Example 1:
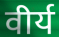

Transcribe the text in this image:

वीर्य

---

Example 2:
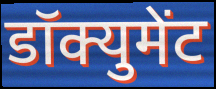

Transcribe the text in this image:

डॉक्युमेंट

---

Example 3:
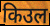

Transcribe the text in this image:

किउल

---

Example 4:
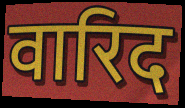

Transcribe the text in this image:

वारिद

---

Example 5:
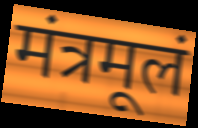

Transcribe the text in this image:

मंत्रमूलं